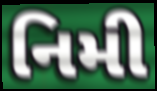
નિમી